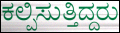
ಕಲ್ಪಿಸುತ್ತಿದ್ದರು